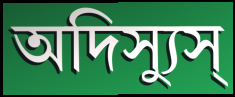
অদিস্যুস্